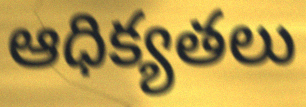
ఆధిక్యతలు